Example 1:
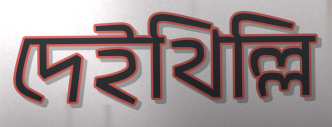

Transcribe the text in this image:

দেইথিল্লি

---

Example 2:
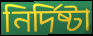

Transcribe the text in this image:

নির্দিষ্টা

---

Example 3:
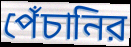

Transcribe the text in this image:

পেঁচানির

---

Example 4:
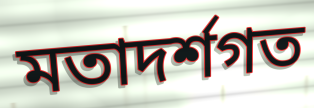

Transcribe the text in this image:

মতাদর্শগত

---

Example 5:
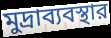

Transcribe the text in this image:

মুদ্রাব্যবস্থার